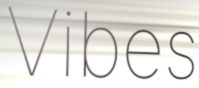
Vibes